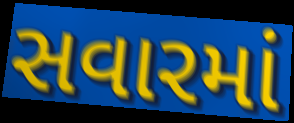
સવારમાં